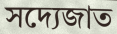
সদ্যেজাত